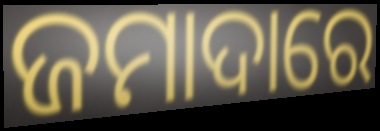
ଜମାଦାରେ